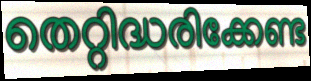
തെറ്റിദ്ധരിക്കേണ്ട